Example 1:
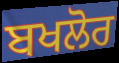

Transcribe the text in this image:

ਬਖਲੋਰ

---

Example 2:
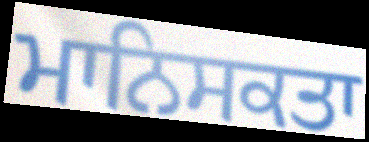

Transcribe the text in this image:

ਮਾਨਿਸਕਤਾ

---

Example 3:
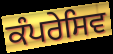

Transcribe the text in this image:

ਕੰਪਰੇਸਿਵ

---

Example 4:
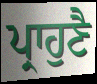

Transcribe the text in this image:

ਪ੍ਰਾਹੁਣੈ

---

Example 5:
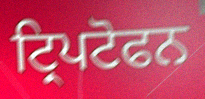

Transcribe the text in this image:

ਟ੍ਰਿਪਟੋਫਨ